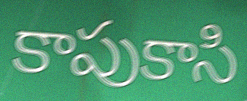
కాపుకాసి